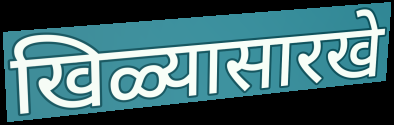
खिळ्यासारखे